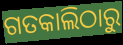
ଗତକାଲିଠାରୁ